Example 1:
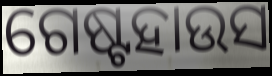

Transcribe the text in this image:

ଗେଷ୍ଟହାଉସ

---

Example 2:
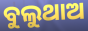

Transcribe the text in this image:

ବୁଲୁଥାଅ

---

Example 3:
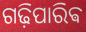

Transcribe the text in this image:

ଗଢ଼ିପାରିଵ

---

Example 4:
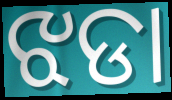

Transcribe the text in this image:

ଝଡା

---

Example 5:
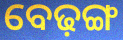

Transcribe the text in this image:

ବେଢ଼ଙ୍ଗ